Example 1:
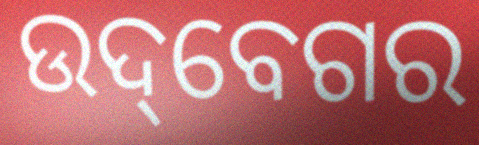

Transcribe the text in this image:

ଉଦ୍‌ବେଗର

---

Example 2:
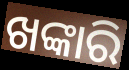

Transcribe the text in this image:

ଖଙ୍କାରି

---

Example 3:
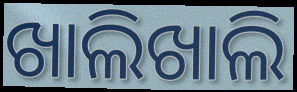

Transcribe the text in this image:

ଖାଲିଖାଲି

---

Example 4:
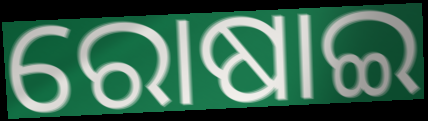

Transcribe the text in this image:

ରୋଷାଇ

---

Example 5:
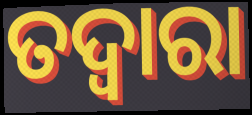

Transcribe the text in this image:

ତଦ୍ୱାରା